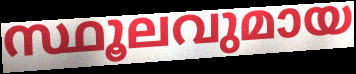
സ്ഥൂലവുമായ